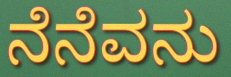
ನೆನೆವನು